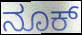
ನೂಕ್